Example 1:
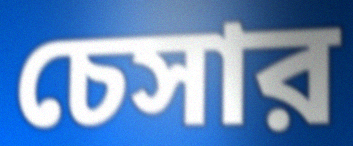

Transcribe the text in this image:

চেসার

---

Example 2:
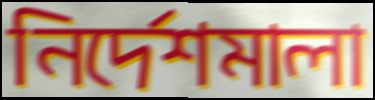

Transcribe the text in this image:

নির্দেশমালা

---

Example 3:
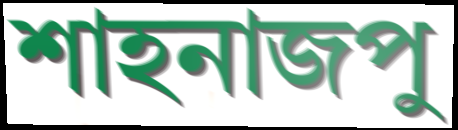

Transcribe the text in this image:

শাহনাজপু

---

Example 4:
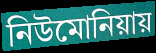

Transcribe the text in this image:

নিউমোনিয়ায়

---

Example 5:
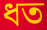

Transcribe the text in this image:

ধত